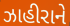
ઝાહીરાને